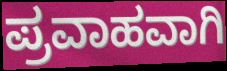
ಪ್ರವಾಹವಾಗಿ